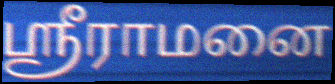
ஸ்ரீராமனை